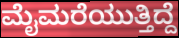
ಮೈಮರೆಯುತ್ತಿದ್ದೆ